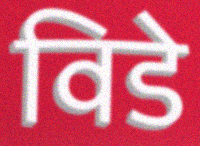
विडे